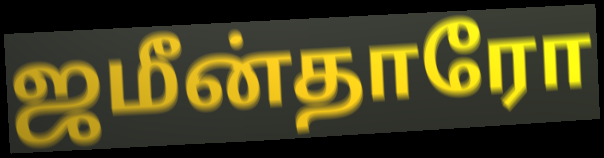
ஜமீன்தாரோ